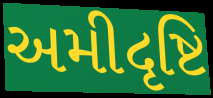
અમીદૃષ્ટિ